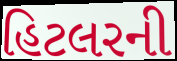
હિટલરની